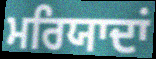
ਮਰਿਯਾਦਾਂ